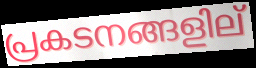
പ്രകടനങ്ങളില്